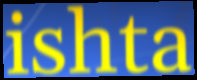
ishta